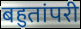
बहुतांपरी